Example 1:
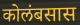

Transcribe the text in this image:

कोलंबसास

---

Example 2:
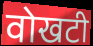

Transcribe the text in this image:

वोखटी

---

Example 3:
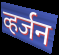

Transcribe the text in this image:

व्हर्जन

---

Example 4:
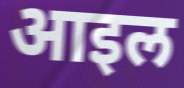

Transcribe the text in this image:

आइल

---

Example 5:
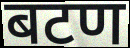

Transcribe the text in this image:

बटण